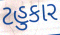
ટહુકાર